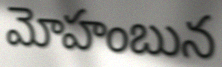
మోహంబున